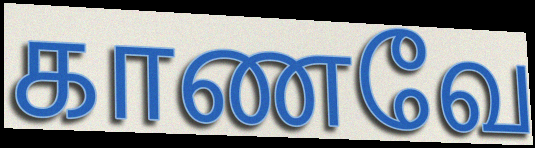
காணவே